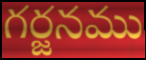
గర్జనము